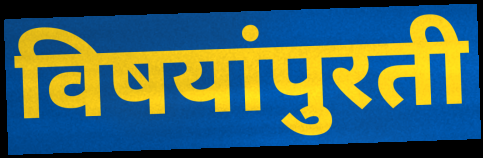
विषयांपुरती